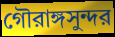
গৌরাঙ্গসুন্দর